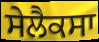
ਸੇਲੈਕਸਾ